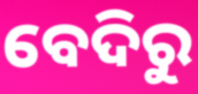
ବେଦିରୁ